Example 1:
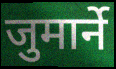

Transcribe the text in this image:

जुमार्ने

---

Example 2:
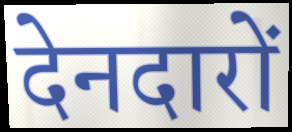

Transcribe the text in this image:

देनदारों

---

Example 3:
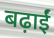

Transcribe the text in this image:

बढ़ाईं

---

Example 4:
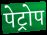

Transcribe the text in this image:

पेट्रोप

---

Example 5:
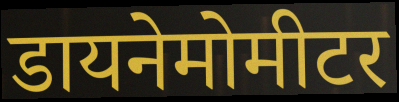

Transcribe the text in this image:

डायनेमोमीटर